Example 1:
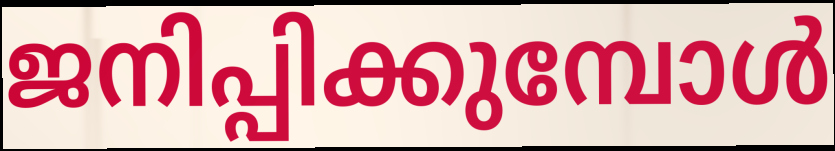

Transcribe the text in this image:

ജനിപ്പിക്കുമ്പോൾ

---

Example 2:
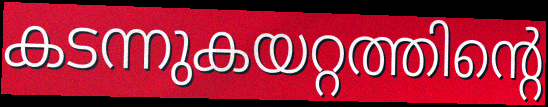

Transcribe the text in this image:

കടന്നുകയറ്റത്തിന്റെ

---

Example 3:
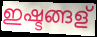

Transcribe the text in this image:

ഇഷ്ടങ്ങള്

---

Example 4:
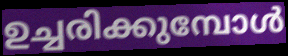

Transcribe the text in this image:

ഉച്ചരിക്കുമ്പോൾ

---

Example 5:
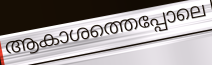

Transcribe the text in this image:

ആകാശത്തെപ്പോലെ